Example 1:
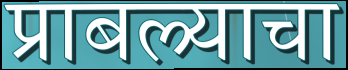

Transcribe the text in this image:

प्राबल्याचा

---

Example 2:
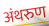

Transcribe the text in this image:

अंथरुण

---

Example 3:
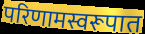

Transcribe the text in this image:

परिणामस्वरूपात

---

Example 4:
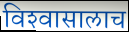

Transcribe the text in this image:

विश्वासालाच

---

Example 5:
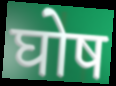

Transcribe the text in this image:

घोष